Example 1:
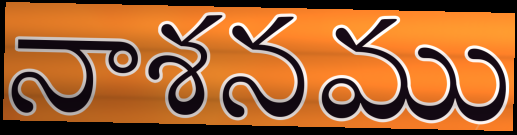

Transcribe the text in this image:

నాశనము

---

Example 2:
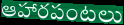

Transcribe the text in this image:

ఆహారపంటలు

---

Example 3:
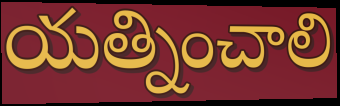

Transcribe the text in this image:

యత్నించాలి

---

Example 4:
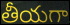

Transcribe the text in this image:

తీయగా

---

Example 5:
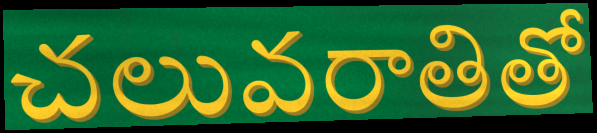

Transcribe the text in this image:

చలువరాతితో